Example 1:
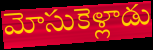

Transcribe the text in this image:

మోసుకెళ్లాడు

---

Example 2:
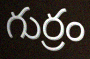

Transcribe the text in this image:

గుర్రం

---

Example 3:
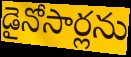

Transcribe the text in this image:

డైనోసార్లను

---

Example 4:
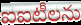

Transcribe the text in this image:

ఐఐటీలను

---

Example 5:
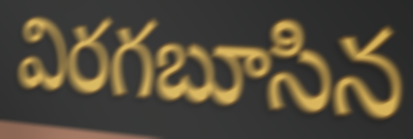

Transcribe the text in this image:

విరగబూసిన